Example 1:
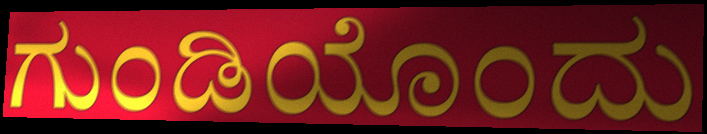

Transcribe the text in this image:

ಗುಂಡಿಯೊಂದು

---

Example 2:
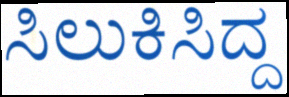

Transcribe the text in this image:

ಸಿಲುಕಿಸಿದ್ದ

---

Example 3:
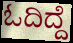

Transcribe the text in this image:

ಓದಿದ್ದೆ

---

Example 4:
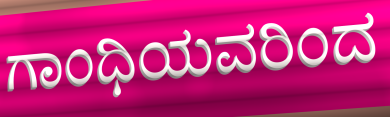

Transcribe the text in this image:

ಗಾಂಧಿಯವರಿಂದ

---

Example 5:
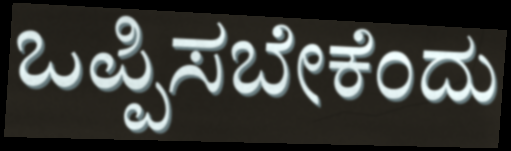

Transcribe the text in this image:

ಒಪ್ಪಿಸಬೇಕೆಂದು